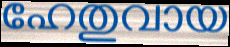
ഹേതുവായ